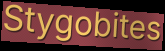
Stygobites